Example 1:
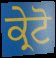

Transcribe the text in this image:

ਕ੍ਰੇਟੋ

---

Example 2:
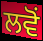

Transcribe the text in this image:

ਲਵੋਂ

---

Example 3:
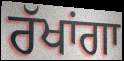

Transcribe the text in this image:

ਰੱਖਾਂਗਾ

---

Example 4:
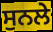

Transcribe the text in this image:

ਸੁਨਲੇ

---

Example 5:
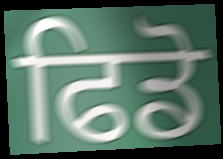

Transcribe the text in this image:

ਫਿਡੋ